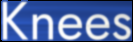
Knees